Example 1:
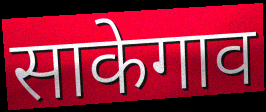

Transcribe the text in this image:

साकेगाव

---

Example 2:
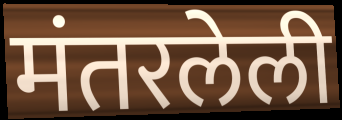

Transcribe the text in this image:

मंतरलेली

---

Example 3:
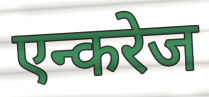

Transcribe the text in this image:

एन्करेज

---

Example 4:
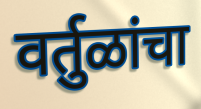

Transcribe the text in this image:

वर्तुळांचा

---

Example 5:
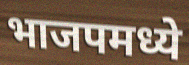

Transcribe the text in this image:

भाजपमध्ये